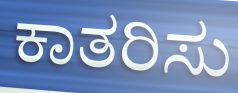
ಕಾತರಿಸು